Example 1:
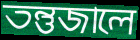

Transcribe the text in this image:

তন্তুজালে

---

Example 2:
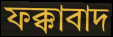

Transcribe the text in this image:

ফক্কাবাদ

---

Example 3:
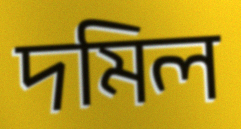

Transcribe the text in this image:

দমিল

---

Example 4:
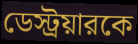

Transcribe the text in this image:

ডেস্ট্রয়ারকে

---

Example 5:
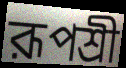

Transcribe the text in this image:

রূপশ্রী